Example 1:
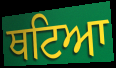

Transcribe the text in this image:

ਥਟਿਆ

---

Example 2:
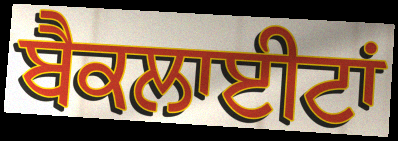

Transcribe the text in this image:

ਬੈਕਲਾਈਟਾਂ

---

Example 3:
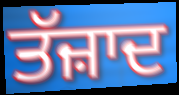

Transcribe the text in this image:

ਤੱਜ਼ਾਦ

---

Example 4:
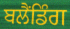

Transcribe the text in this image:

ਬਲੈਂਡਿੰਗ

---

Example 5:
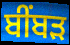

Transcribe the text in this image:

ਬੀਂਬੜ